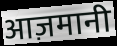
आज़मानी